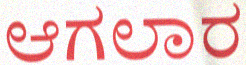
ಆಗಲಾರ